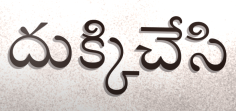
దుక్కిచేసి